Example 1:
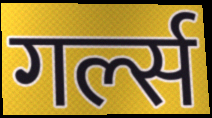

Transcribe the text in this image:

गर्ल्स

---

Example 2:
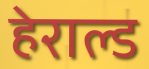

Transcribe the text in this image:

हेराल्ड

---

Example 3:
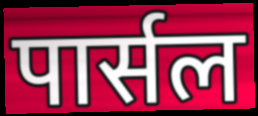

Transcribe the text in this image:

पार्सल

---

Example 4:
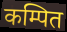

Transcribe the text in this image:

कम्पित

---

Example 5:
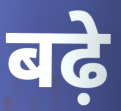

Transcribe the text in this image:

बढ़े